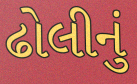
ઢોલીનું